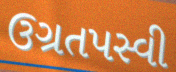
ઉગ્રતપસ્વી